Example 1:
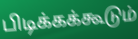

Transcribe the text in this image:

பிடிக்கக்கூடும்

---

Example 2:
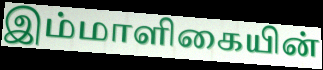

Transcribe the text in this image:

இம்மாளிகையின்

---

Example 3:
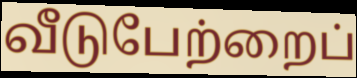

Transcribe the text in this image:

வீடுபேற்றைப்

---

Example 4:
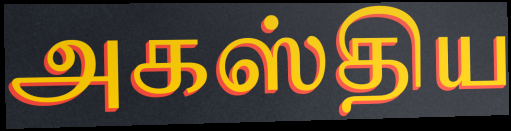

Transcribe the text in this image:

அகஸ்திய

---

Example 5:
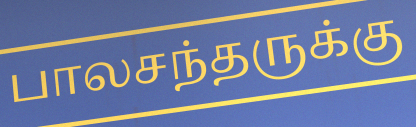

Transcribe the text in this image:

பாலசந்தருக்கு